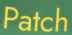
Patch